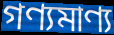
গণ্যমাণ্য